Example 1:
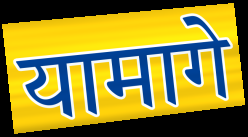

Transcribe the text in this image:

यामागे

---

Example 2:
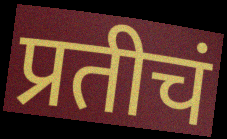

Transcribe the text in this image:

प्रतीचं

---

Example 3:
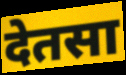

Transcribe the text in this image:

देतसा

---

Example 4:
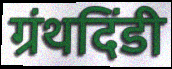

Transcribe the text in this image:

ग्रंथदिंडी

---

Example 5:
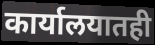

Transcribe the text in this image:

कार्यालयातही